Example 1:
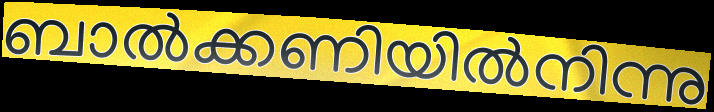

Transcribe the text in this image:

ബാൽക്കണിയിൽനിന്നു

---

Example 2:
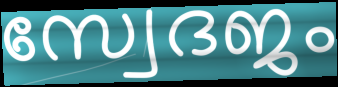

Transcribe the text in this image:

സ്വേദജം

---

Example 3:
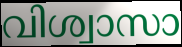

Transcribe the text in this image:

വിശ്വാസാ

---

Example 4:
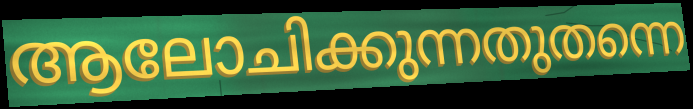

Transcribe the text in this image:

ആലോചിക്കുന്നതുതന്നെ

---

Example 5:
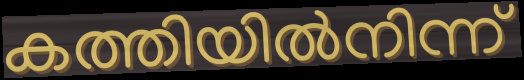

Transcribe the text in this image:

കത്തിയിൽനിന്ന്